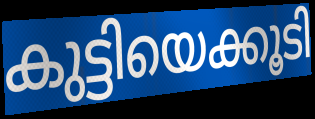
കുട്ടിയെക്കൂടി